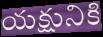
యక్షునికి